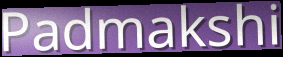
Padmakshi